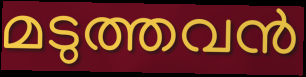
മടുത്തവൻ